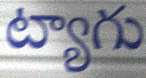
ట్యాగు